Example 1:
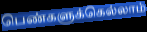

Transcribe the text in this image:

பெண்களுக்கெல்லாம்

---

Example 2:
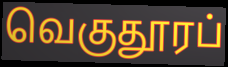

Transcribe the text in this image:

வெகுதூரப்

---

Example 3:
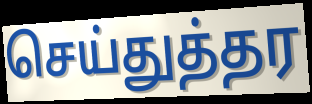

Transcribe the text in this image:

செய்துத்தர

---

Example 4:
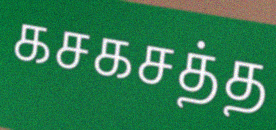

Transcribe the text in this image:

கசகசத்த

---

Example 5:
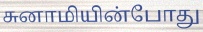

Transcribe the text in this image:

சுனாமியின்போது